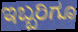
ಇಬ್ಬರಿಗೂ